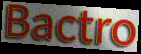
Bactro